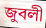
জুবলী